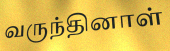
வருந்தினாள்